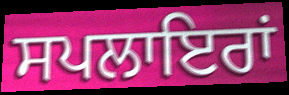
ਸਪਲਾਇਰਾਂ